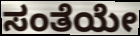
ಸಂತೆಯೇ